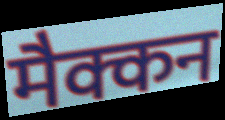
मैक्कन